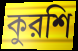
কুরশি